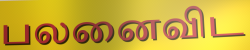
பலனைவிட